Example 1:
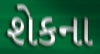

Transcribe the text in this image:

શેકના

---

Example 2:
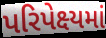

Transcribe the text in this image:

પરિપેક્ષ્યમાં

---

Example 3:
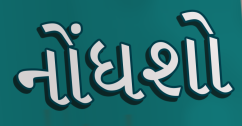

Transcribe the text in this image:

નોંધશો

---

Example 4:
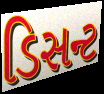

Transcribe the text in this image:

ડિસન્ટ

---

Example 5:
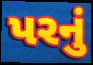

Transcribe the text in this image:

પરનું